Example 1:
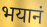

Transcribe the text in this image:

भयानं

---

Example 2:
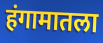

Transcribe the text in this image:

हंगामातला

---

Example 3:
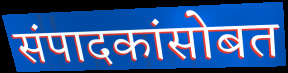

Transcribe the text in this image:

संपादकांसोबत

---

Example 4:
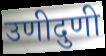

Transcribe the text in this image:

उणीदुणी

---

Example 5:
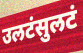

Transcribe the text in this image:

उलटंसुलटं